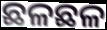
ଛଳଛଳ